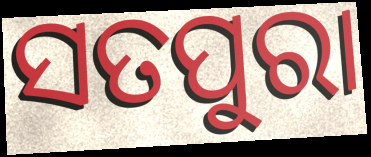
ସତପୁରା